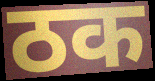
ठक